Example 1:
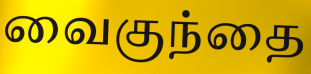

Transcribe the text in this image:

வைகுந்தை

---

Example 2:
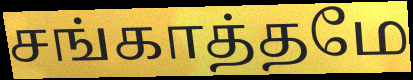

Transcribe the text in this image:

சங்காத்தமே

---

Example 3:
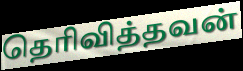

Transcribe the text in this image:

தெரிவித்தவன்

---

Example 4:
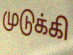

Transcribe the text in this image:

முடுக்கி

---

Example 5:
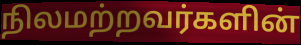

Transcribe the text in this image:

நிலமற்றவர்களின்